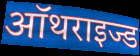
ऑथराइज्ड